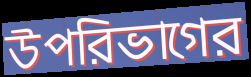
উপরিভাগের